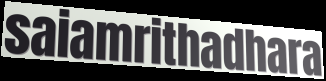
saiamrithadhara